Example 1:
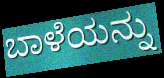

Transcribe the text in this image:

ಬಾಳೆಯನ್ನು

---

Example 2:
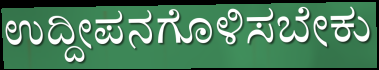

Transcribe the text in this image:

ಉದ್ದೀಪನಗೊಳಿಸಬೇಕು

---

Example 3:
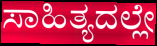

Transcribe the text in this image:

ಸಾಹಿತ್ಯದಲ್ಲೇ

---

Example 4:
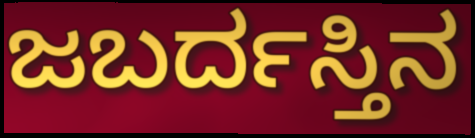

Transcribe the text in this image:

ಜಬರ್ದಸ್ತಿನ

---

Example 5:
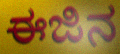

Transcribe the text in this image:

ಈಜಿನ